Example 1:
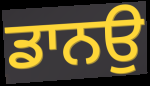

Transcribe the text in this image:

ਡਾਨਉ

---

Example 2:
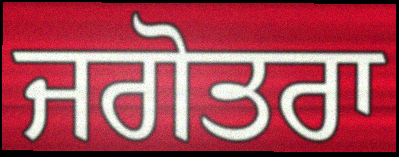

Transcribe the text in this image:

ਜਗੋਤਰਾ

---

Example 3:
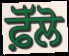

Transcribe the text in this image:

ਫ਼ੋੱਲੋ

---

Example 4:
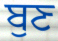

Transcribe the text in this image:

ਬੁਣ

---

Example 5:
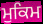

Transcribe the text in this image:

ਮੁਕਿਮ